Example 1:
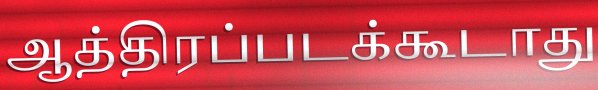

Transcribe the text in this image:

ஆத்திரப்படக்கூடாது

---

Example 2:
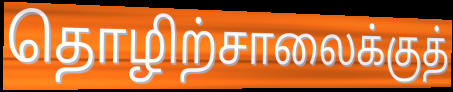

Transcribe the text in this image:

தொழிற்சாலைக்குத்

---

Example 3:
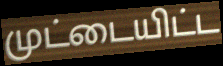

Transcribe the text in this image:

முட்டையிட்ட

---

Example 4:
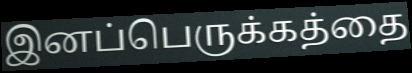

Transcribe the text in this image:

இனப்பெருக்கத்தை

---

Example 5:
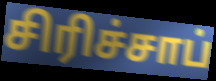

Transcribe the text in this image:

சிரிச்சாப்